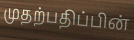
முதற்பதிப்பின்